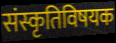
संस्कृतिविषयक